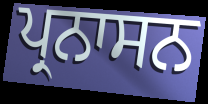
ਪ੍ਰਨਾਸਨ